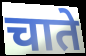
चाते